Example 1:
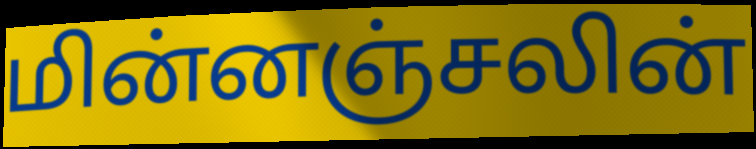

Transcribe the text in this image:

மின்னஞ்சலின்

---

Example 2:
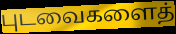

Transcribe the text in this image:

புடவைகளைத்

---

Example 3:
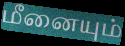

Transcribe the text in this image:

மீனையும்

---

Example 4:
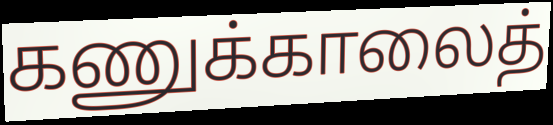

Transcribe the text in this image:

கணுக்காலைத்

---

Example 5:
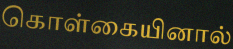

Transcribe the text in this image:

கொள்கையினால்